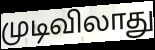
முடிவிலாது